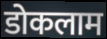
डोकलाम